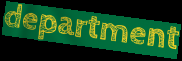
department